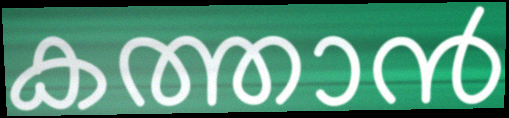
കത്താൻ